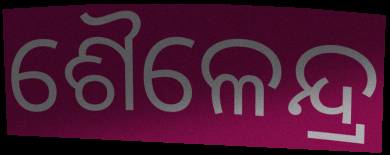
ଶୈଳେନ୍ଦ୍ର